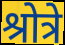
श्रोत्रे